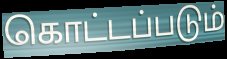
கொட்டப்படும்